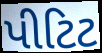
પીટિટ